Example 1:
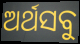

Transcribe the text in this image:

ଅର୍ଥସବୁ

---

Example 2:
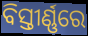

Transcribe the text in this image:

ବିସ୍ତୀର୍ଣ୍ଣରେ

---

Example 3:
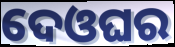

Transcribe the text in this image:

ଦେଓଘର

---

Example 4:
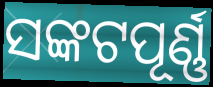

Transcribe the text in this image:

ସଙ୍କଟପୂର୍ଣ୍ଣ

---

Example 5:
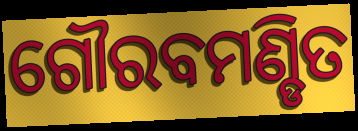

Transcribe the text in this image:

ଗୌରବମଣ୍ଡିତ